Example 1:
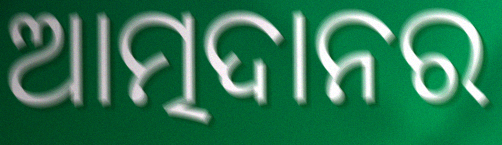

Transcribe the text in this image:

ଆତ୍ମଦାନର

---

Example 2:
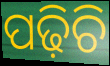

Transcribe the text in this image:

ପଢ଼ିଚି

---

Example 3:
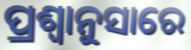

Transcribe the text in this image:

ପ୍ରଶ୍ବାନୁସାରେ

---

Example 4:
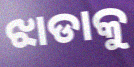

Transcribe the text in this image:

ଝାଡାକୁ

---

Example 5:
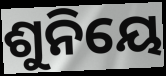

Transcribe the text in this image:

ଶୁନିୟେ